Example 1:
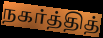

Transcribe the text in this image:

நகர்த்தித்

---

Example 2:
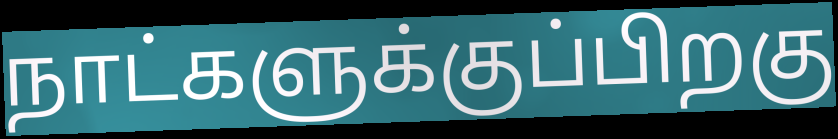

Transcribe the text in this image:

நாட்களுக்குப்பிறகு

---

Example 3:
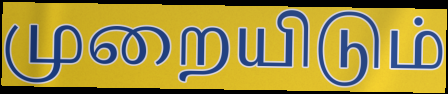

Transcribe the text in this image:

முறையிடும்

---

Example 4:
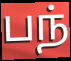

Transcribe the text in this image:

பந்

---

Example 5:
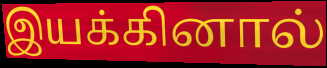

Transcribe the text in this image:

இயக்கினால்